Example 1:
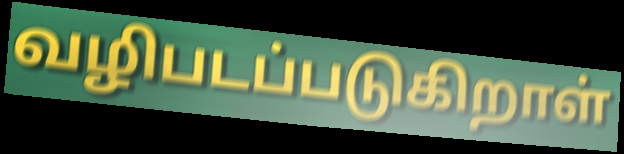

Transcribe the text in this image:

வழிபடப்படுகிறாள்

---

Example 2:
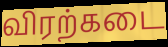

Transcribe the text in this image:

விரற்கடை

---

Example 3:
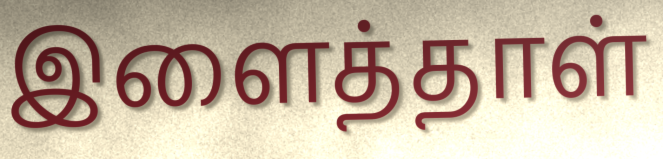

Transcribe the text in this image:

இளைத்தாள்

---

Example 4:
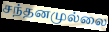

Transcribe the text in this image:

சந்தனமுல்லை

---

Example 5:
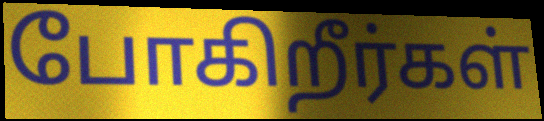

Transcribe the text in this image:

போகிறீர்கள்